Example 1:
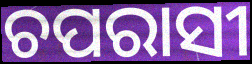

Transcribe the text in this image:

ଚପରାସୀ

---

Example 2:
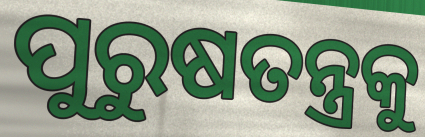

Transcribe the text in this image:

ପୁରୁଷତନ୍ତ୍ରକୁ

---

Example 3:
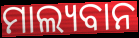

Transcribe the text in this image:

ମାଲ୍ୟବାନ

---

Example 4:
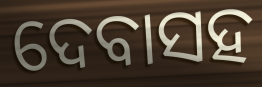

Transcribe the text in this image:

ଦେବାସହ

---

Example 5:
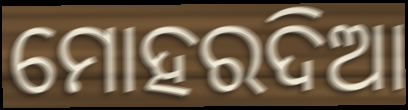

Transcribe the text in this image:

ମୋହରଦିଆ